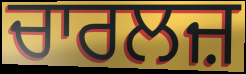
ਚਾਰਲਜ਼